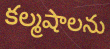
కల్మషాలను